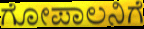
ಗೋಪಾಲನಿಗೆ